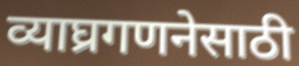
व्याघ्रगणनेसाठी